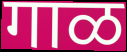
गाळ